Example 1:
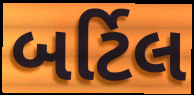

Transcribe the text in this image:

બર્ટિલ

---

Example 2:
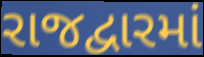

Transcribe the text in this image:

રાજદ્વારમાં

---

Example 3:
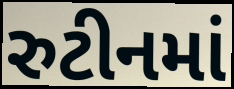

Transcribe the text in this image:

રુટીનમાં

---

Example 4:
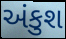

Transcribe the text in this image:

અંકુશ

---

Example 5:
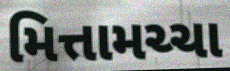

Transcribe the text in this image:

મિત્તામચ્ચા